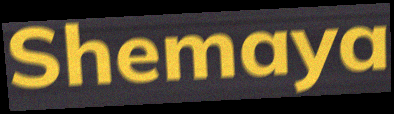
Shemaya